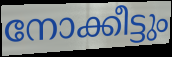
നോക്കീട്ടും